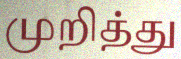
முறித்து